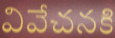
వివేచనకి